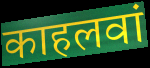
काहलवां